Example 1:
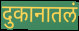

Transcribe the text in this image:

दुकानातलं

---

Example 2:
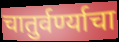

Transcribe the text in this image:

चातुर्वर्ण्याचा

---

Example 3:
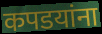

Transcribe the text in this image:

कपडयांना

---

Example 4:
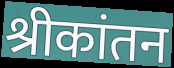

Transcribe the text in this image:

श्रीकांतन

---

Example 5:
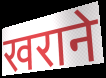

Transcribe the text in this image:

खराने